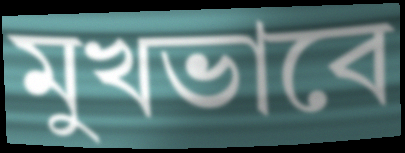
মুখভাবে